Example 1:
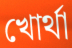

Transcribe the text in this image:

খোৰ্থা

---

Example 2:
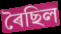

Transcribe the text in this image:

ৰৈছিল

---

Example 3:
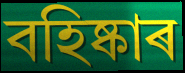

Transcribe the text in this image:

বহিষ্কাৰ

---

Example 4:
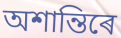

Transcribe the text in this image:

অশান্তিৰে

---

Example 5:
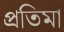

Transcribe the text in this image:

প্ৰতিমা